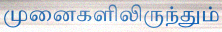
முனைகளிலிருந்தும்